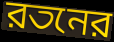
রতনের